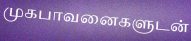
முகபாவனைகளுடன்